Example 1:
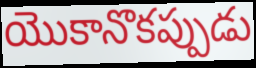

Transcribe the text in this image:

యొకానొకప్పుడు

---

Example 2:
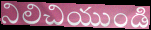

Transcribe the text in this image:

నిలిచియుండి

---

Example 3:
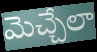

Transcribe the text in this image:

మెచ్చేలా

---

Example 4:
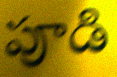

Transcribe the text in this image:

పూడి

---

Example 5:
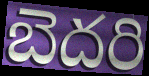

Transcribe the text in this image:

బెదరి